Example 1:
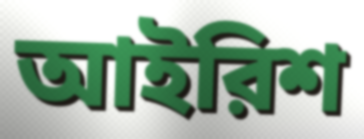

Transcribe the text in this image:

আইরিশ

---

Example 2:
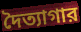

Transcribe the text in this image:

দৈত্যাগার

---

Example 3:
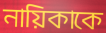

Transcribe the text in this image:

নায়িকাকে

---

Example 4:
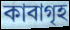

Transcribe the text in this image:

কাবাগৃহ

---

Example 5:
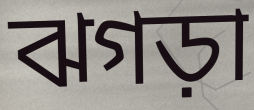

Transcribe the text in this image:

ঝগড়া